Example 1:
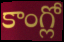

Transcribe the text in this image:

కాంగ్లో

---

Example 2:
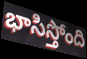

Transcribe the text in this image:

భాసిస్తోంది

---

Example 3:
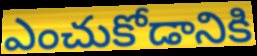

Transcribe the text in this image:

ఎంచుకోడానికి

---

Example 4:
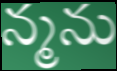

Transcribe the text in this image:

న్మను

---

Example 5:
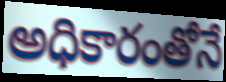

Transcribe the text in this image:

అధికారంతోనే